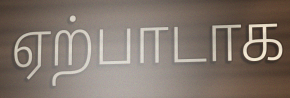
ஏற்பாடாக